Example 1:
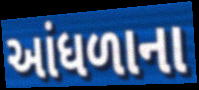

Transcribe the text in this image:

આંધળાના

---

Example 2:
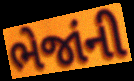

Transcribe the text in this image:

ભેજાંની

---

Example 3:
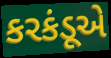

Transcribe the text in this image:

કરકંડૂએ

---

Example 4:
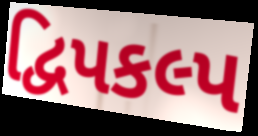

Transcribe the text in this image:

દ્વિપકલ્પ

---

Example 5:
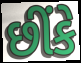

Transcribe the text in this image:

છીંકે